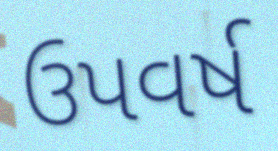
ઉપવર્ષ